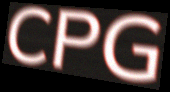
CPG